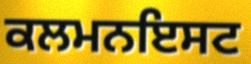
ਕਲਮਨਇਸਟ